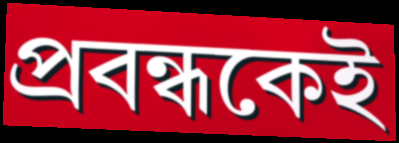
প্রবন্ধকেই